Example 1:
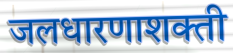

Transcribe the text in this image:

जलधारणाशक्ती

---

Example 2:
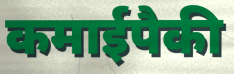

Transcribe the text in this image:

कमाईपैकी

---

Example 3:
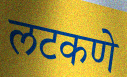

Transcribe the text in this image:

लटकणे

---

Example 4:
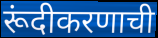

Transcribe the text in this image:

रूंदीकरणाची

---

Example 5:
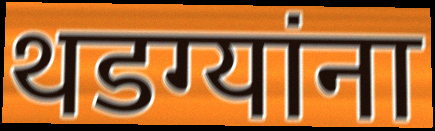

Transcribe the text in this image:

थडग्यांना